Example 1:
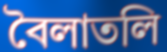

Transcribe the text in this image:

বৈলাতলি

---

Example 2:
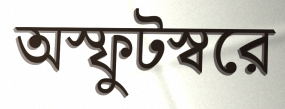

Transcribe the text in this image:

অস্ফুটস্বরে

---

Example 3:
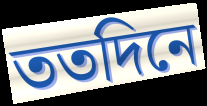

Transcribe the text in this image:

ততদিনে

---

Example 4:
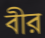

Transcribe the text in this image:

বীর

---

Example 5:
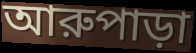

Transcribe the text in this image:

আরুপাড়া